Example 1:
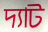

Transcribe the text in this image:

দ্যাট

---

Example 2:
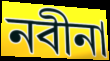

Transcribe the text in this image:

নবীনা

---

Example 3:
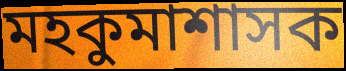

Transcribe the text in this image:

মহকুমাশাসক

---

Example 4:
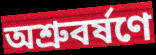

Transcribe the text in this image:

অশ্রুবর্ষণে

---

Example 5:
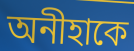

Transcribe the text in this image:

অনীহাকে